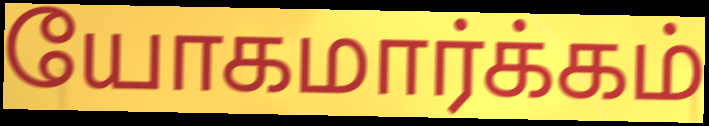
யோகமார்க்கம்